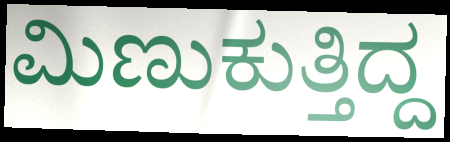
ಮಿಣುಕುತ್ತಿದ್ದ